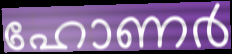
ഹോണർ